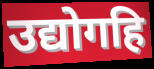
उद्योगहि